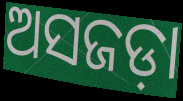
ଅସଜଡ଼ା